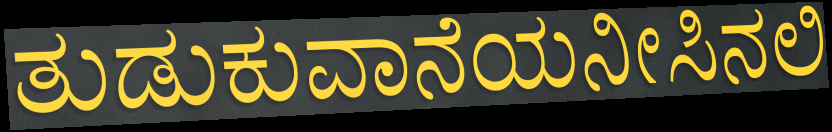
ತುಡುಕುವಾನೆಯನೀಸಿನಲಿ